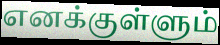
எனக்குள்ளும்